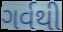
ગર્વથી